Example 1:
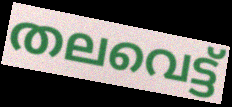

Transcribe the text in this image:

തലവെട്ട്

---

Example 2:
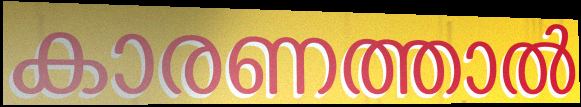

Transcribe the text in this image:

കാരണത്താൽ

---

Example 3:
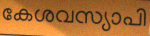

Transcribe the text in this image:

കേശവസ്യാപി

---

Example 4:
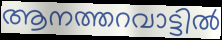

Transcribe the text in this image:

ആനത്തറവാട്ടിൽ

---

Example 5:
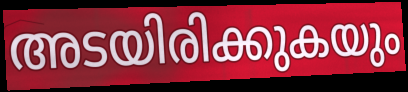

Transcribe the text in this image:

അടയിരിക്കുകയും